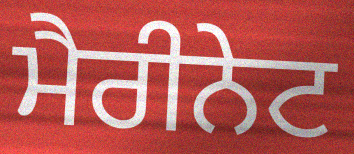
ਮੈਰੀਨੇਟ